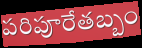
పరిపూరేతబ్బం